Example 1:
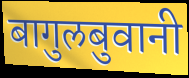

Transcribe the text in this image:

बागुलबुवानी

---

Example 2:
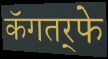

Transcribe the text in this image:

कॅगतर्फे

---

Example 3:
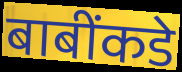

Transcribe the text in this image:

बाबींकडे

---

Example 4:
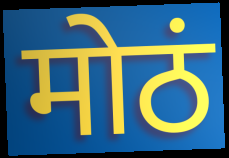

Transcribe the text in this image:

मोठं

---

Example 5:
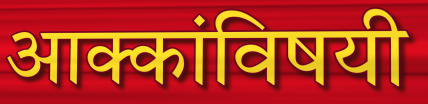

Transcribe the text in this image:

आक्कांविषयी